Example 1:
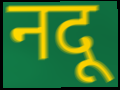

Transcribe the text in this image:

नदू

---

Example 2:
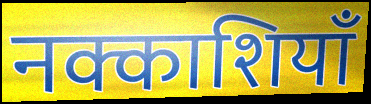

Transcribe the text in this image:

नक्काशियाँ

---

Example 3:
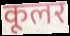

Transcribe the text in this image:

कूलर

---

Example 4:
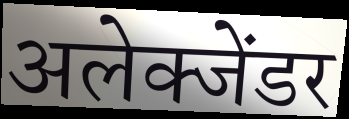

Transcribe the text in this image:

अलेक्जेंडर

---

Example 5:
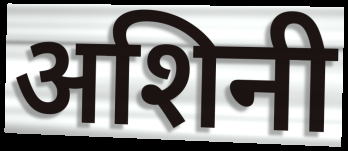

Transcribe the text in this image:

अशिनी